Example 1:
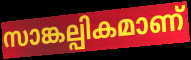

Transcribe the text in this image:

സാങ്കല്പികമാണ്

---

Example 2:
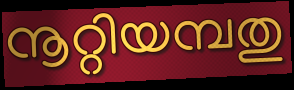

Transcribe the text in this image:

നൂറ്റിയമ്പതു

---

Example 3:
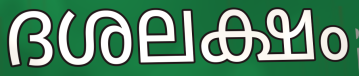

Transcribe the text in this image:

ദശലക്ഷം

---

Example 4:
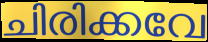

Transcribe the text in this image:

ചിരിക്കവേ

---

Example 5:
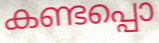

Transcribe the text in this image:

കണ്ടപ്പൊ